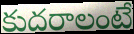
కుదరాలంటే